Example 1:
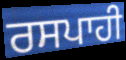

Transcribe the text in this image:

ਰਸਪਾਹੀ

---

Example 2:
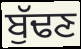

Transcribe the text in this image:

ਬੁੱਢਣ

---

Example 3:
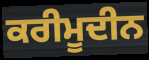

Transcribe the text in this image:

ਕਰੀਮੂਦੀਨ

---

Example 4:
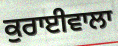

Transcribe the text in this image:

ਕੁਰਾਈਵਾਲਾ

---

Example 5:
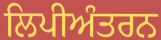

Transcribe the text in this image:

ਲਿਪੀਅੰਤਰਨ